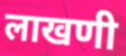
लाखणी